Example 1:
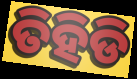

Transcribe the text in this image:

ତିହିଡି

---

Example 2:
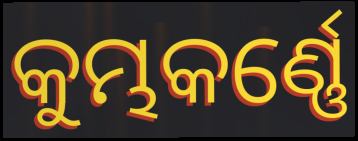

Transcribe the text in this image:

କୁମ୍ଭକର୍ଣ୍ଣେ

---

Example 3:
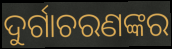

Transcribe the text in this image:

ଦୁର୍ଗାଚରଣଙ୍କର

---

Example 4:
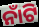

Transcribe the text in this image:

ନାଁଟି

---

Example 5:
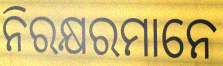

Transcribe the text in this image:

ନିରକ୍ଷରମାନେ